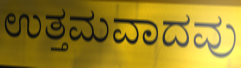
ಉತ್ತಮವಾದವು